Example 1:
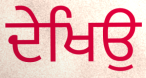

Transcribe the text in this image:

ਦੇਖਿਉ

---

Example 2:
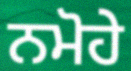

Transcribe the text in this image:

ਨਮੋਹੇ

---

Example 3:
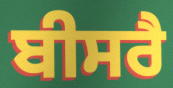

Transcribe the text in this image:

ਬੀਸਰੈ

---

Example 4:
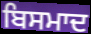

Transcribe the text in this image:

ਬਿਸਮਾਦ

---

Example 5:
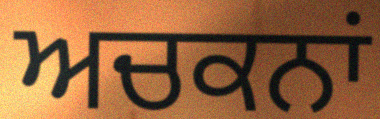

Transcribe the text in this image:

ਅਚਕਨਾਂ